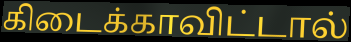
கிடைக்காவிட்டால்